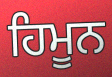
ਹਿਮੂਨ